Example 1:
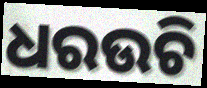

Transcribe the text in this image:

ଧରଉଚି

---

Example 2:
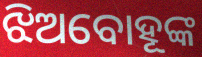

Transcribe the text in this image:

ଝିଅବୋହୂଙ୍କ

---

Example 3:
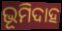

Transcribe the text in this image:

ଭୂମିଦାହ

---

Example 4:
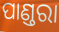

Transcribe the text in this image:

ପାଣ୍ଡରା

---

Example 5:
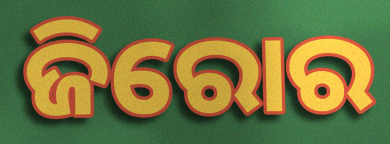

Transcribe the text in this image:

ଜିରୋର